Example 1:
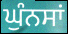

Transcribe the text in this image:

ਘੁੰਨਸਾਂ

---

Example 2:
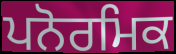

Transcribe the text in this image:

ਪਨੋਰਮਿਕ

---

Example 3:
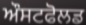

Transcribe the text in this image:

ਔਸਟਫੋਲਡ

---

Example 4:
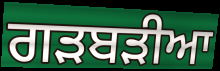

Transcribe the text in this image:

ਗੜਬੜੀਆ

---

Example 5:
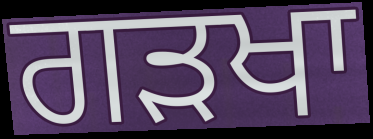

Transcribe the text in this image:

ਗੜਖਾ